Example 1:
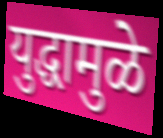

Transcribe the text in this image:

युद्धामुळे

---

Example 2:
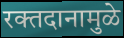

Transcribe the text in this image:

रक्तदानामुळे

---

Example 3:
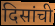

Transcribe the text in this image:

दिसांची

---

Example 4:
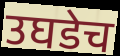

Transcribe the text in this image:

उघडेच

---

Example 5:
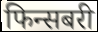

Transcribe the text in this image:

फिन्सबरी